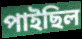
পাইছিল